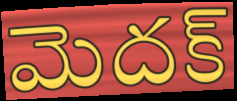
మెదక్